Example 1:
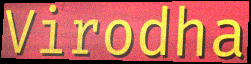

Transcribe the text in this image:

Virodha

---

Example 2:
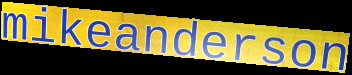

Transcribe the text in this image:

mikeanderson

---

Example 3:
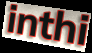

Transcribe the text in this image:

inthi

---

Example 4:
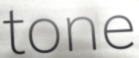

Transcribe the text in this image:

tone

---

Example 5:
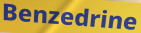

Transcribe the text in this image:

Benzedrine